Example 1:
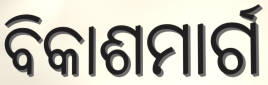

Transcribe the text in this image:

ବିକାଶମାର୍ଗ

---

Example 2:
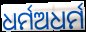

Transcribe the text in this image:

ଧର୍ମଅଧର୍ମ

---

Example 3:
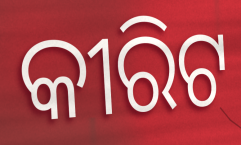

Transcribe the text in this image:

କୀରିଟ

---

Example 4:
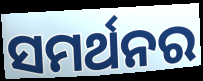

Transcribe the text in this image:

ସମର୍ଥନର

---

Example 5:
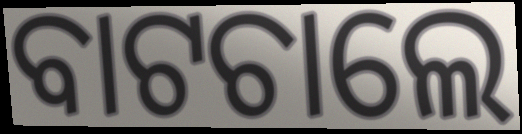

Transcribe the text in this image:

ବାଟଚାଲେ